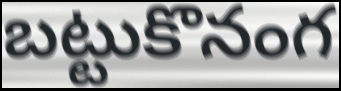
బట్టుకొనంగ